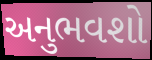
અનુભવશો